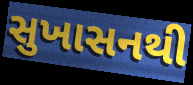
સુખાસનથી